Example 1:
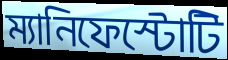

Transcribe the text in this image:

ম্যানিফেস্টোটি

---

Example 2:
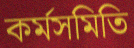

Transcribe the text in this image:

কর্মসমিতি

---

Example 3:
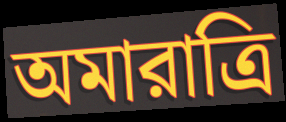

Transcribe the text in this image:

অমারাত্রি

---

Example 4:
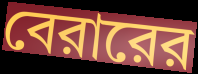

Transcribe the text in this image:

বেরারের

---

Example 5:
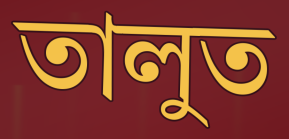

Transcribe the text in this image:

তালুত